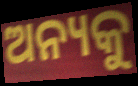
ଅନ୍ୟକୁ